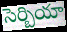
సెర్బియా